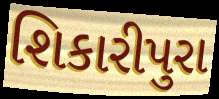
શિકારીપુરા